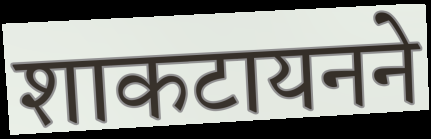
शाकटायनने